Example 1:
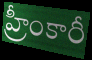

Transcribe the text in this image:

హ్రీంకారీ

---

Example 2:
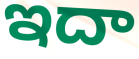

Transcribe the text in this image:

ఇదా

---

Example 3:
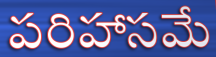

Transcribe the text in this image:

పరిహాసమే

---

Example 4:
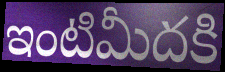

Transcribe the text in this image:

ఇంటిమీదకి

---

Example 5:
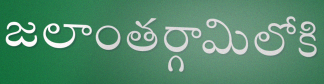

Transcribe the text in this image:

జలాంతర్గామిలోకి